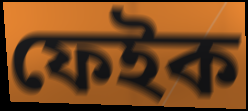
ফেইক